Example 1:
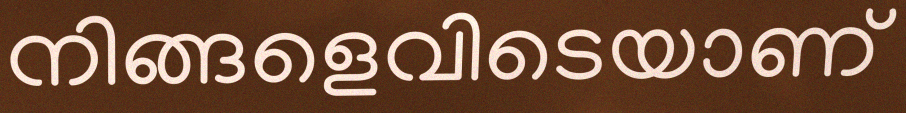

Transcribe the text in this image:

നിങ്ങളെവിടെയാണ്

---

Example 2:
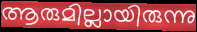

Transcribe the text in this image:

ആരുമില്ലായിരുന്നു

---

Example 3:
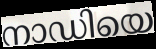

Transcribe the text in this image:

നാഡിയെ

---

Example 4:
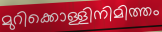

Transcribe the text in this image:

മുറിക്കൊള്ളിനിമിത്തം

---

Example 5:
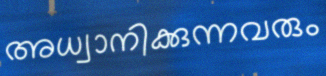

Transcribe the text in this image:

അധ്വാനിക്കുന്നവരും